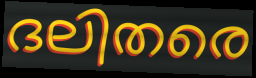
ദലിതരെ